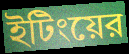
ইটিংয়ের